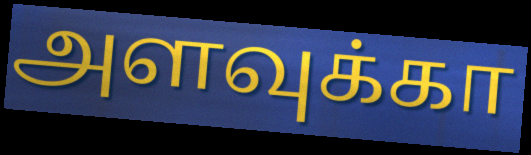
அளவுக்கா